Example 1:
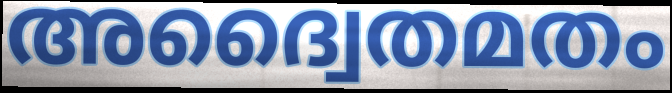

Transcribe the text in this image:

അദ്വൈതമതം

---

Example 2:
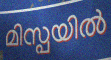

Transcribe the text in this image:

മിസ്പയിൽ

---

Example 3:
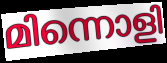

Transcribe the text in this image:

മിന്നൊളി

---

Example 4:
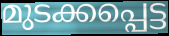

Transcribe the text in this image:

മുടക്കപ്പെട്ട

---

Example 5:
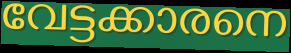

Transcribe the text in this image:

വേട്ടക്കാരനെ